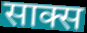
साक्स